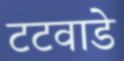
टटवाडे